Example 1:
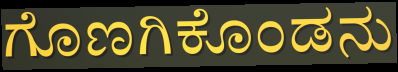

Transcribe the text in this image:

ಗೊಣಗಿಕೊಂಡನು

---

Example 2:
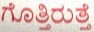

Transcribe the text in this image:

ಗೊತ್ತಿರುತ್ತೆ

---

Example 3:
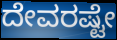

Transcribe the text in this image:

ದೇವರಷ್ಟೇ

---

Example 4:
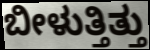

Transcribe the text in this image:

ಬೀಳುತ್ತಿತ್ತು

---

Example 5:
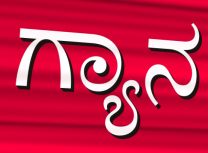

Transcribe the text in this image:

ಗ್ಯಾನ